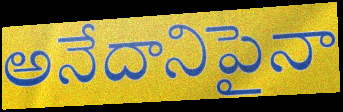
అనేదానిపైనా